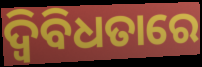
ଦ୍ୱିବିଧତାରେ